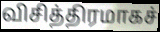
விசித்திரமாகச்